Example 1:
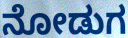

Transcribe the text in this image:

ನೋಡುಗ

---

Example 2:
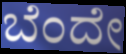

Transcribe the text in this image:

ಬೆಂದೇ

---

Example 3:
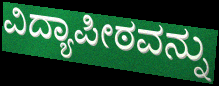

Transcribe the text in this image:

ವಿದ್ಯಾಪೀಠವನ್ನು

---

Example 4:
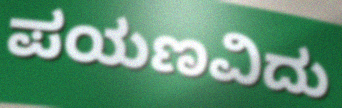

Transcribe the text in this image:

ಪಯಣವಿದು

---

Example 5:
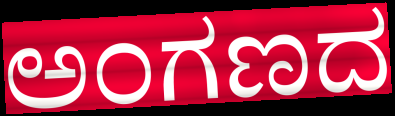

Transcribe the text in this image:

ಅಂಗಣದ